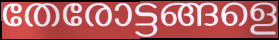
തേരോട്ടങ്ങളെ